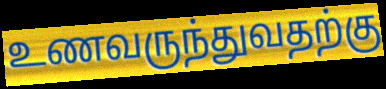
உணவருந்துவதற்கு